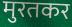
मुरतकर